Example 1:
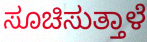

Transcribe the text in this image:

ಸೂಚಿಸುತ್ತಾಳೆ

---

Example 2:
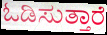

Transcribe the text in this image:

ಓಡಿಸುತ್ತಾರೆ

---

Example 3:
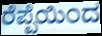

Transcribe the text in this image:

ರೆಪ್ಪೆಯಿಂದ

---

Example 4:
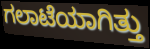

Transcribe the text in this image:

ಗಲಾಟೆಯಾಗಿತ್ತು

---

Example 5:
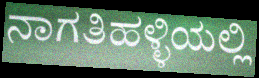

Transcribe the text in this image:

ನಾಗತಿಹಳ್ಳಿಯಲ್ಲಿ